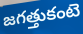
జగత్తుకంటె